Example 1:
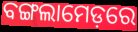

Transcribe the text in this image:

ବଙ୍ଗଲାମେଡ଼ରେ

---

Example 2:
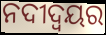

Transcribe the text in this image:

ନଦୀଦ୍ବୟର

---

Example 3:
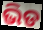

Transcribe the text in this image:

ଭିଡ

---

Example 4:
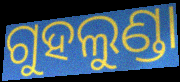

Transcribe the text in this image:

ଗୁହଲୁଣ୍ଡା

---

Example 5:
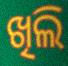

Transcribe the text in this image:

ଖିଲି